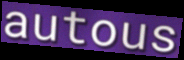
autous